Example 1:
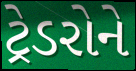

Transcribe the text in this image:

ટ્રેડરોને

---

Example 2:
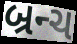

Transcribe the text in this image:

બ્રન્ચ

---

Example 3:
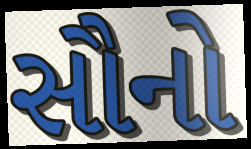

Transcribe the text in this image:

સૌનો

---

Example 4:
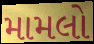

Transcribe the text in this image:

મામલો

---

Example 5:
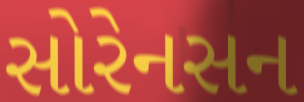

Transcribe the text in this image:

સોરેનસન